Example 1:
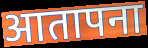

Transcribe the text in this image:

आतापना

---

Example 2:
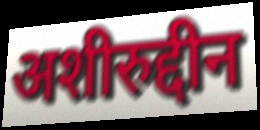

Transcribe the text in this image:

अशीरुद्दीन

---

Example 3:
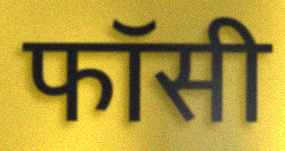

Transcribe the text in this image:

फॉसी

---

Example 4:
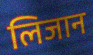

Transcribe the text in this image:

लिजान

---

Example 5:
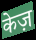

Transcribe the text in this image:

केज़